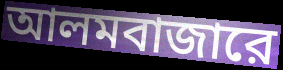
আলমবাজারে